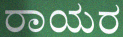
ರಾಯರ